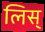
लिस्